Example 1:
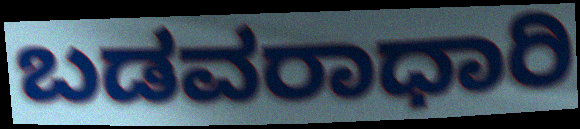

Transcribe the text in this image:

ಬಡವರಾಧಾರಿ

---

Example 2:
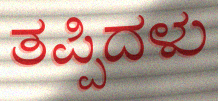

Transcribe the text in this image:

ತಪ್ಪಿದಳು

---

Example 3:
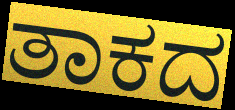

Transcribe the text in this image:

ತಾಕದ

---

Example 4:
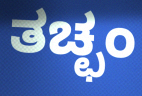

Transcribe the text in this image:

ತಚ್ಛಂ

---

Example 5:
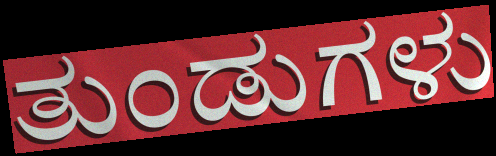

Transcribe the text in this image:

ತುಂಡುಗಳು